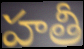
హతీ